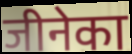
जीनेका